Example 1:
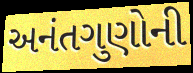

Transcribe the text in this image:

અનંતગુણોની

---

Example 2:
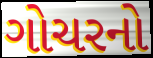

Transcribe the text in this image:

ગોચરનો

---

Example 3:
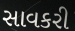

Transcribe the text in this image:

સાવકરી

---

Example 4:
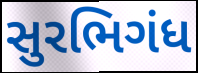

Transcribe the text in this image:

સુરભિગંધ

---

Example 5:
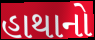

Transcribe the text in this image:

હાથાનો